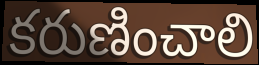
కరుణించాలి